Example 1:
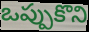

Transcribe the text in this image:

ఒప్పుకొని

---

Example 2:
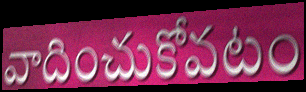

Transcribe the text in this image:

వాదించుకోవటం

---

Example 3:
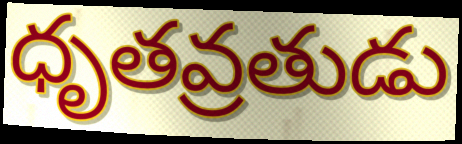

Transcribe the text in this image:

ధృతవ్రతుడు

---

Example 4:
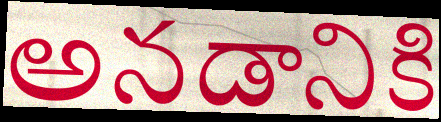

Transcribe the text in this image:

అనడానికి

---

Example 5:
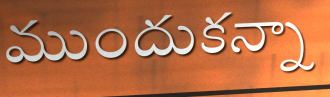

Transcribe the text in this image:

ముందుకన్నా